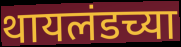
थायलंडच्या